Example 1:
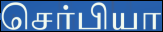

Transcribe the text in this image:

செர்பியா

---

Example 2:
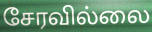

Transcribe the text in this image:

சேரவில்லை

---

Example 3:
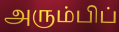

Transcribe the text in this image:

அரும்பிப்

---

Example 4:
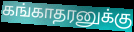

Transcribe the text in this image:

கங்காதரனுக்கு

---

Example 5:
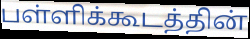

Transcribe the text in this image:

பள்ளிக்கூடத்தின்